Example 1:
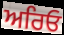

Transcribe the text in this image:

ਅਰਿਓ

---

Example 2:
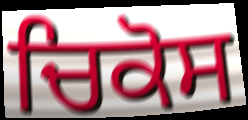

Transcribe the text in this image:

ਚਿਕੋਸ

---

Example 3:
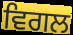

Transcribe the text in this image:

ਵਿਗਲ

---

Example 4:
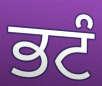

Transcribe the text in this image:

ਭਟੰ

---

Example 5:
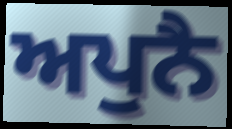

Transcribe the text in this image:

ਅਪੁਨੈ